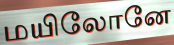
மயிலோனே